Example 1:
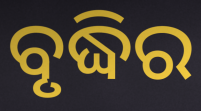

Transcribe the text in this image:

ବୃଦ୍ଧିର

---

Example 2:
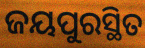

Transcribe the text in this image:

ଜୟପୁରସ୍ଥିତ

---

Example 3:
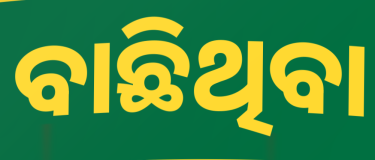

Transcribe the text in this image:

ବାଛିଥିବା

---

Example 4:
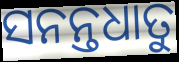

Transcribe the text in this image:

ସନନ୍ତଧାତୁ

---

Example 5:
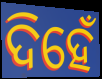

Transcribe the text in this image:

ଦିହେଁ